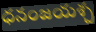
ధనంజయశ్చ